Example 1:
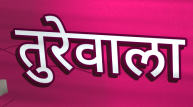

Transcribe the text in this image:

तुरेवाला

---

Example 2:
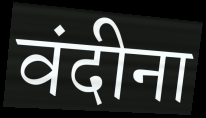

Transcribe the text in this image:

वंदीना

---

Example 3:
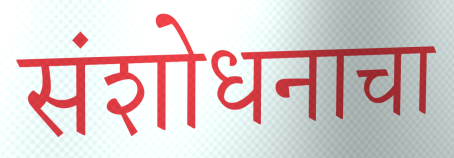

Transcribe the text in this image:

संशोधनाचा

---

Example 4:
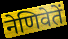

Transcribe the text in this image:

नेणिवेतें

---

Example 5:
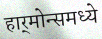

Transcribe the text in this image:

हार्मोन्समध्ये